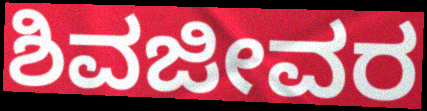
ಶಿವಜೀವರ